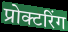
प्रोक्टरिंग